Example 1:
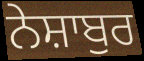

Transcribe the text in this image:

ਨੇਸ਼ਾਬੁਰ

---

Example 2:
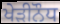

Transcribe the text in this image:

ਖੇੜੀਨੌਧ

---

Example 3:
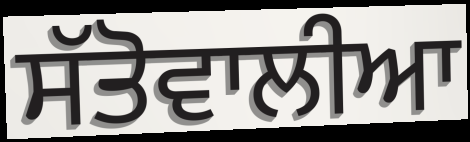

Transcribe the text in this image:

ਸੱਤੋਵਾਲੀਆ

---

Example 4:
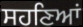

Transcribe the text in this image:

ਸਹਣਿਆਂ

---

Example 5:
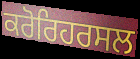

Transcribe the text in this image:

ਕਰੋਰਿਹਰਸਲ